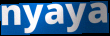
nyaya